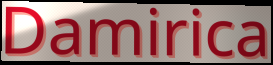
Damirica